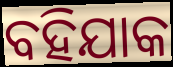
ବହିଯାକ